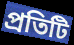
প্রতিটি